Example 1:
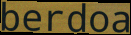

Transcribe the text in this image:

berdoa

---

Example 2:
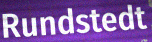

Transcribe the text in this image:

Rundstedt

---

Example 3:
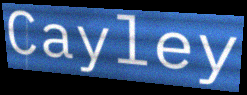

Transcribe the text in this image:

Cayley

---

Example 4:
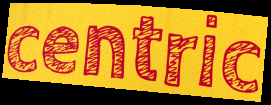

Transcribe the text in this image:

centric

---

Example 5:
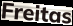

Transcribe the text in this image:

Freitas